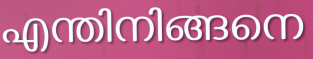
എന്തിനിങ്ങനെ